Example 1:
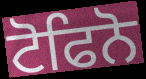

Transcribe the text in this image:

ਟੋਫਿਨੋ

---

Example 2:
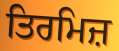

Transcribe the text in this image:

ਤਿਰਮਿਜ਼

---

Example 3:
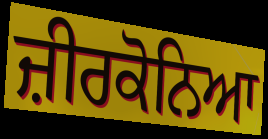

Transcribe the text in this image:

ਜ਼ੀਰਕੋਨਿਆ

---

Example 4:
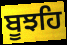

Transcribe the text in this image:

ਬੂਝਹਿ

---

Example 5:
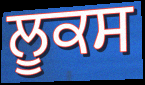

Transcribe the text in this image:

ਲੂਕਸ